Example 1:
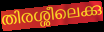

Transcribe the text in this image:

തിരശ്ശീലെക്കു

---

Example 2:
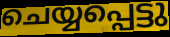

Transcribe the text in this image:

ചെയ്യപ്പെട്ടു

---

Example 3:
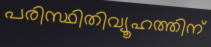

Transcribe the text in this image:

പരിസ്ഥിതിവ്യൂഹത്തിന്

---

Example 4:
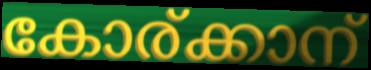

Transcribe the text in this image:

കോര്ക്കാന്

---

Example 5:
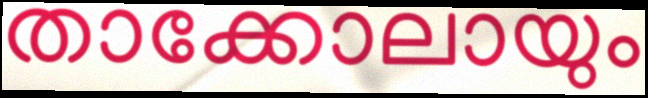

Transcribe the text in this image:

താക്കോലായും